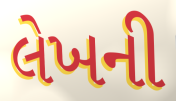
લેખની